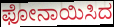
ಫೋನಾಯಿಸಿದ